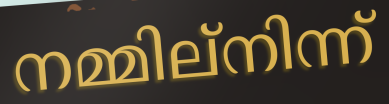
നമ്മില്നിന്ന്